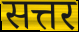
सत्तर